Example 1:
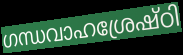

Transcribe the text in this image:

ഗന്ധവാഹശ്രേഷ്ഠി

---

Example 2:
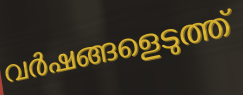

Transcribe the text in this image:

വർഷങ്ങളെടുത്ത്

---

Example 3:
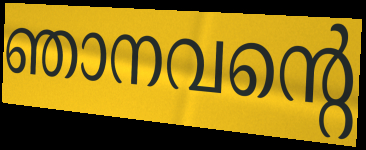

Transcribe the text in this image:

ഞാനവന്റെ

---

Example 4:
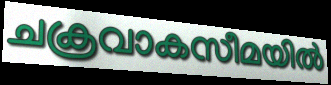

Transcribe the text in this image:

ചക്രവാകസീമയിൽ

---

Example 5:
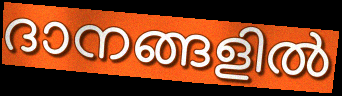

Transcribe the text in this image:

ദാനങ്ങളിൽ